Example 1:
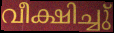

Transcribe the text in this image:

വീക്ഷിച്ചു്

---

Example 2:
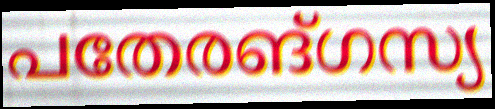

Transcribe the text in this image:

പതേരങ്ഗസ്യ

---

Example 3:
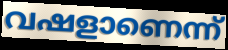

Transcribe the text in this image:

വഷളാണെന്ന്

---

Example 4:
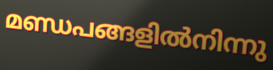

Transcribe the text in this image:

മണ്ഡപങ്ങളിൽനിന്നു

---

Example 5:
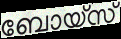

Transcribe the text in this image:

ബോയ്സ്